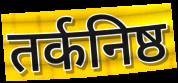
तर्कनिष्ठ